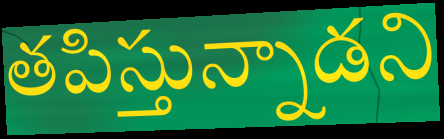
తపిస్తున్నాడని